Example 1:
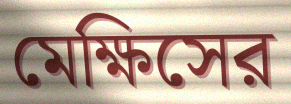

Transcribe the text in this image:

মেক্ষিসের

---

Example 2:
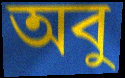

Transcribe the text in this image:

অবু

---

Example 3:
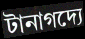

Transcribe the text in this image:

টানাগদ্যে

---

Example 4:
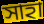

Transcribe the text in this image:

সাহা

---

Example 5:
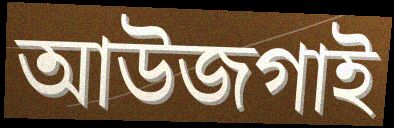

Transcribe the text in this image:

আউজগাই